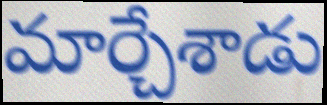
మార్చేశాడు